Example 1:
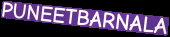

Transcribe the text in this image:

PUNEETBARNALA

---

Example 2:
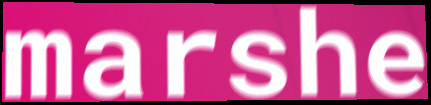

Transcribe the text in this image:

marshe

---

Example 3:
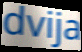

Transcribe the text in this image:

dvija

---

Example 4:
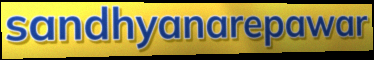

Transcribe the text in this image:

sandhyanarepawar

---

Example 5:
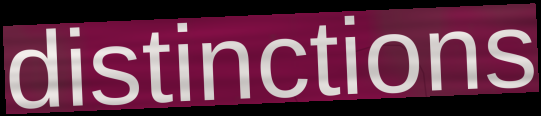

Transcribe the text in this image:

distinctions